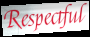
Respectful